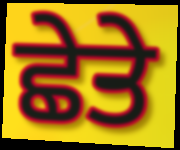
ਛੇਤੇ